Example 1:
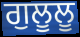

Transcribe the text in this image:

ਗੁਲੂਲੂ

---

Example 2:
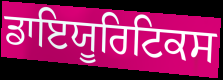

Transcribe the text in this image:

ਡਾਇਯੂਰਿਟਿਕਸ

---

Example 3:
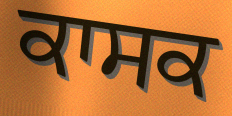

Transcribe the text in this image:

ਕਾਸਕ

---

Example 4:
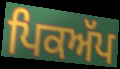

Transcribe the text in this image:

ਪਿਕਅੱਪ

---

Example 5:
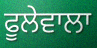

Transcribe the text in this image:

ਫੂਲੇਵਾਲਾ